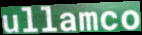
ullamco